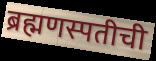
ब्रह्मणस्पतीची